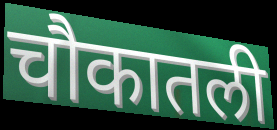
चौकातली